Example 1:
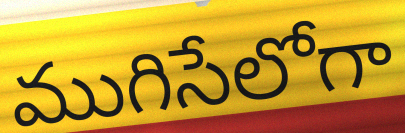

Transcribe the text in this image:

ముగిసేలోగా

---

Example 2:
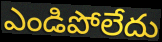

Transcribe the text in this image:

ఎండిపోలేదు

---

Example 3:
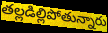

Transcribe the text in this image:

తల్లడిల్లిపోతున్నారు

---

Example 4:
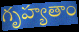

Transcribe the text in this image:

గృహ్యతాం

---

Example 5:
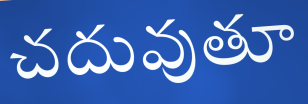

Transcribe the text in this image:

చదువుతూ